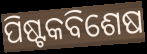
ପିଷ୍ଟକବିଶେଷ